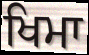
ਖਿਮਾ